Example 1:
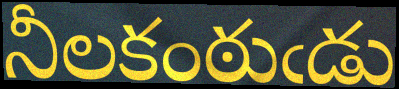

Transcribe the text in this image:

నీలకంఠుఁడు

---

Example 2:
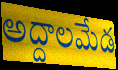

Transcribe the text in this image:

అద్దాలమేడ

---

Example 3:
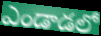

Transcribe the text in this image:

ఎండాడలో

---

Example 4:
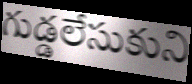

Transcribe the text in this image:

గుడ్డలేసుకుని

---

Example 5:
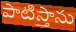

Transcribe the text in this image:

పాటిస్తాను